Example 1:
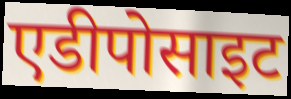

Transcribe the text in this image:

एडीपोसाइट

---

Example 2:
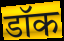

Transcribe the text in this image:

डॉक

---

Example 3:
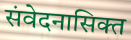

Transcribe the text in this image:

संवेदनासिक्त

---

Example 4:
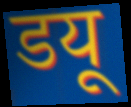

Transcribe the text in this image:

डयू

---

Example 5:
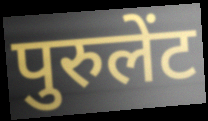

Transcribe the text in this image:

पुरुलेंट